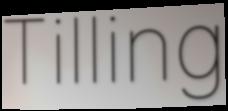
Tilling